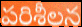
పరిశీలన